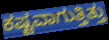
ಕಷ್ಟವಾಗುತ್ತಿತ್ತು